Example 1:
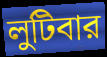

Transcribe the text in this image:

লুটিবার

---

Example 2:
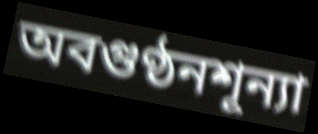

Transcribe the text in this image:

অবগুণ্ঠনশূন্যা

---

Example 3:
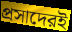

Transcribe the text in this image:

প্রসাদেরই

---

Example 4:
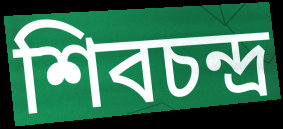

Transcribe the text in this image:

শিবচন্দ্র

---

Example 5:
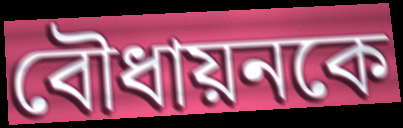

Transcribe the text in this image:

বৌধায়নকে